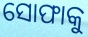
ସୋଫାକୁ